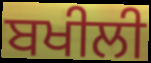
ਬਖੀਲੀ